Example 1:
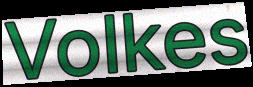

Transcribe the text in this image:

Volkes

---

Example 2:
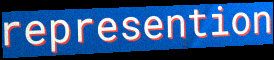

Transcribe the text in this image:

represention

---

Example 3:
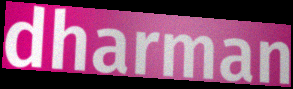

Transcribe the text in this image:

dharman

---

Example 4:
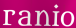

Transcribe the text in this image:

ranio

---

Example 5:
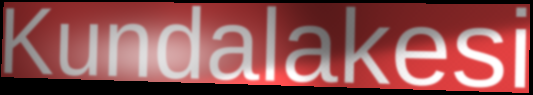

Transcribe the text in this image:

Kundalakesi